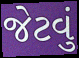
જેટવું